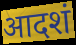
आदशं